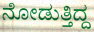
ನೋಡುತ್ತಿದ್ದ